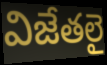
విజేతలై